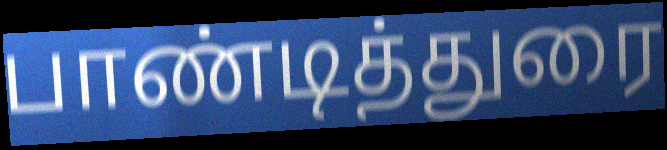
பாண்டித்துரை